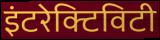
इंटरेक्टिविटी